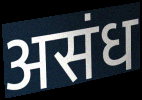
असंध